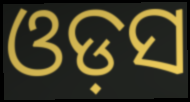
ଓଡ଼ସ